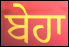
ਬੇਹਾ